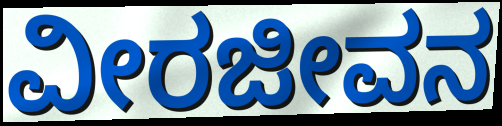
ವೀರಜೀವನ